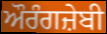
ਔਰੰਗਜ਼ੇਬੀ